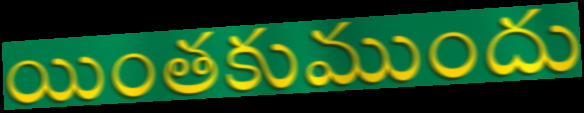
యింతకుముందు